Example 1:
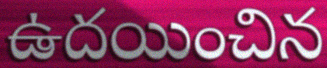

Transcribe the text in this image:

ఉదయించిన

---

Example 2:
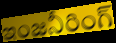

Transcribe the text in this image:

ఇంజనీరింగ్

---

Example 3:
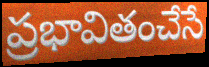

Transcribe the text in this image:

ప్రభావితంచేసే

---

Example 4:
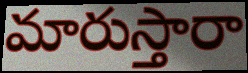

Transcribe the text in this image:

మారుస్తారా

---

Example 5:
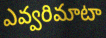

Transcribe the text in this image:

ఎవ్వరిమాటా